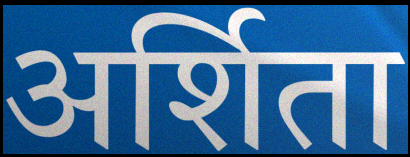
अर्शिता